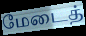
மேடைத்